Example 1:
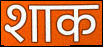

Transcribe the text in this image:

शाक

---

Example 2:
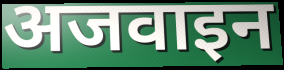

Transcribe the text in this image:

अजवाइन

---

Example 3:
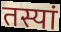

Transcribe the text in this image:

तस्यां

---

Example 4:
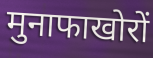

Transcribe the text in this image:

मुनाफाखोरों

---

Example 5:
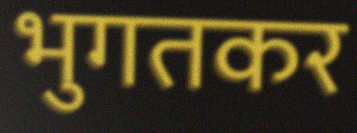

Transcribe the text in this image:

भुगतकर